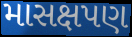
માસક્ષપણ